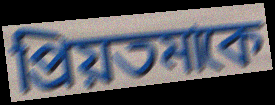
প্রিয়তমাকে